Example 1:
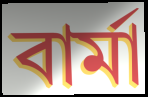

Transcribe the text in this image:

বার্মা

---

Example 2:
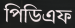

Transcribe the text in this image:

পিডিএফ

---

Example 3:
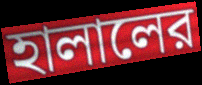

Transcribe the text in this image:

হালালের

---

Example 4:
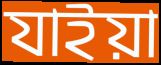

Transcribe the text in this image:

যাইয়া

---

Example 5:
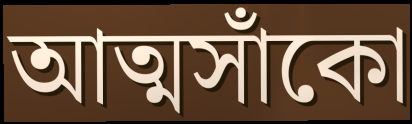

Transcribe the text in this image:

আত্মসাঁকো